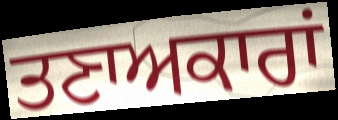
ਤਣਾਅਕਾਰਾਂ